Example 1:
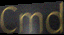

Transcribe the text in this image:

Cmd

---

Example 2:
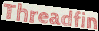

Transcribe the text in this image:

Threadfin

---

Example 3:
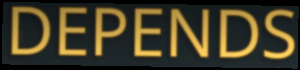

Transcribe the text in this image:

DEPENDS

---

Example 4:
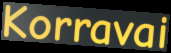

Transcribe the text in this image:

Korravai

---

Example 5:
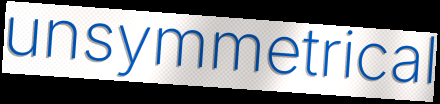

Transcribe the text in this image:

unsymmetrical